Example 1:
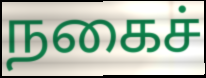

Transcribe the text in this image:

நகைச்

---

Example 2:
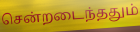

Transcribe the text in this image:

சென்றடைந்ததும்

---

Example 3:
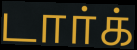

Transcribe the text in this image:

டார்க்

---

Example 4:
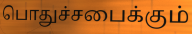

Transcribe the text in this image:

பொதுச்சபைக்கும்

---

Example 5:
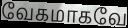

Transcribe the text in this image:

வேகமாகவே